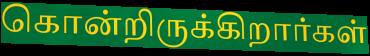
கொன்றிருக்கிறார்கள்